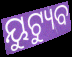
ୟୁଟ୍ୟୁବ